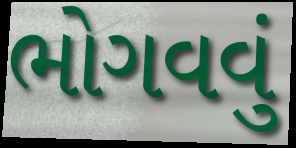
ભોગવવું